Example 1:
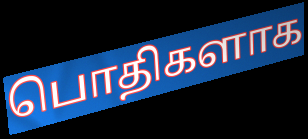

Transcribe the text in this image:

பொதிகளாக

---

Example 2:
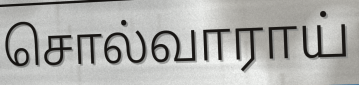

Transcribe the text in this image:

சொல்வாராய்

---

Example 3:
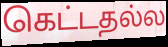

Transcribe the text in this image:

கெட்டதல்ல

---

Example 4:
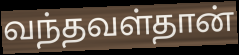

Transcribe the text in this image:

வந்தவள்தான்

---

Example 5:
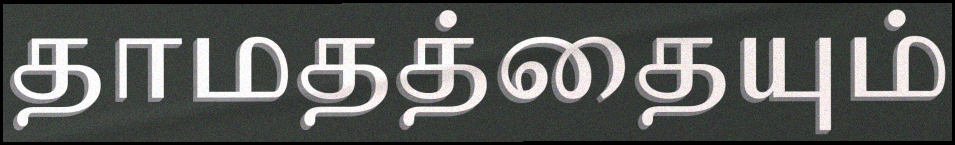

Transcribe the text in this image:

தாமதத்தையும்